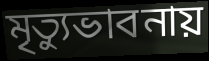
মৃত্যুভাবনায়